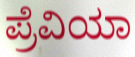
ಪ್ರೆವಿಯಾ